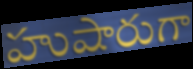
హుషారుగా